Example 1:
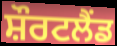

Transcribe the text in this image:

ਸ਼ੌਰਟਲੈਂਡ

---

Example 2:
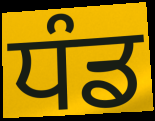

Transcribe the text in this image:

ਧੰਡ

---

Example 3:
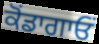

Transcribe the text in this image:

ਕੋਂਡਾਗਾਓਂ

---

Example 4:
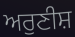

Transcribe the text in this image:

ਅਰੁਣੀਸ਼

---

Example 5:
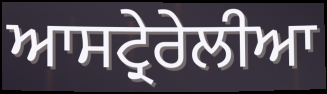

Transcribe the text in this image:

ਆਸਟ੍ਰੇਰੇਲੀਆ